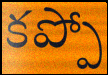
కప్పో